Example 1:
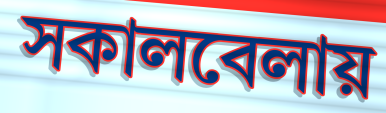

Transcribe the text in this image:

সকালবেলায়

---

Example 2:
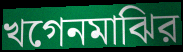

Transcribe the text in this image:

খগেনমাঝির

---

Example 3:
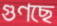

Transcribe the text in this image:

গুণছে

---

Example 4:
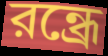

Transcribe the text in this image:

রন্ধ্রে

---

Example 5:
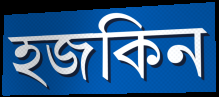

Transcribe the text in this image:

হজকিন